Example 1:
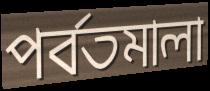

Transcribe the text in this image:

পর্বতমালা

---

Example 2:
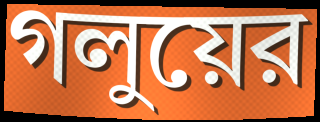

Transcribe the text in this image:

গলুয়ের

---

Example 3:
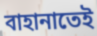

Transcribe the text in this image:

বাহানাতেই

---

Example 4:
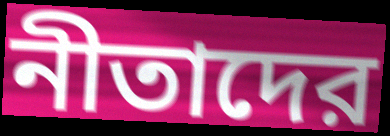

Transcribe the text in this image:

নীতাদের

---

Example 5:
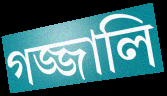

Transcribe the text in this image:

গজ্জালি